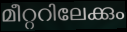
മീറ്ററിലേക്കും